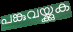
പങ്കുവയ്ക്കുക